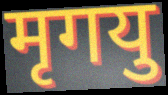
मृगयु